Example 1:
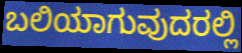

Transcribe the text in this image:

ಬಲಿಯಾಗುವುದರಲ್ಲಿ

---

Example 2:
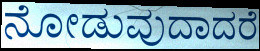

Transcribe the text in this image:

ನೋಡುವುದಾದರೆ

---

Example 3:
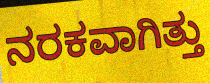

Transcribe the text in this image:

ನರಕವಾಗಿತ್ತು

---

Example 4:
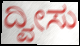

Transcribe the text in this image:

ದ್ವೀಸು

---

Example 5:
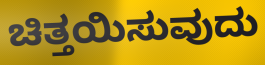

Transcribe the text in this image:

ಚಿತ್ತಯಿಸುವುದು